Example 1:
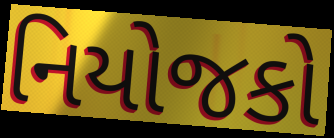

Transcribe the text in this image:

નિયોજકો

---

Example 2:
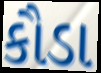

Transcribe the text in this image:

કૌડા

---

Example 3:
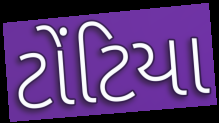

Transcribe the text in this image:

ટોંટિયા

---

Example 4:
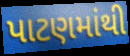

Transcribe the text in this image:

પાટણમાંથી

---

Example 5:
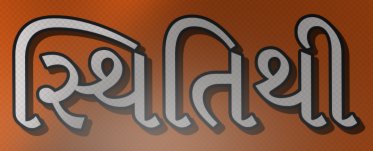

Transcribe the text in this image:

સ્થિતિથી